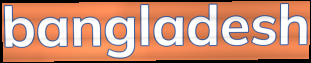
bangladesh